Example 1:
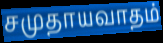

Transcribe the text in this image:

சமுதாயவாதம்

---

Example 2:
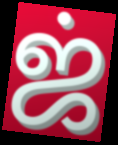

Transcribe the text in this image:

ஜ்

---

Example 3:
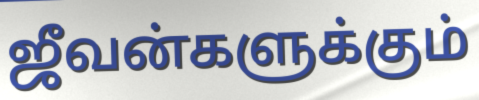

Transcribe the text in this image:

ஜீவன்களுக்கும்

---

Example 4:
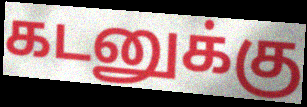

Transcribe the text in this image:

கடனுக்கு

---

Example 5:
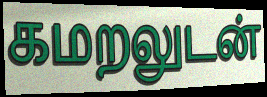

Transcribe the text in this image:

கமறலுடன்